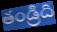
తండ్రిది